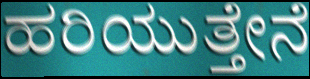
ಹರಿಯುತ್ತೇನೆ